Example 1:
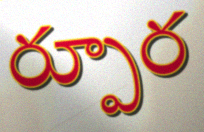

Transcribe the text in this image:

ర్పూర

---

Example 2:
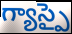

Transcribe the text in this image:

గ్యాస్పై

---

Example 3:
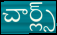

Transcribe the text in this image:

చార్ల్స్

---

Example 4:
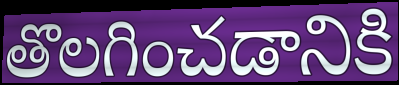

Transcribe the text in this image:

తొలగించడానికి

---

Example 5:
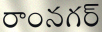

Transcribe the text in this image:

రాంనగర్